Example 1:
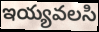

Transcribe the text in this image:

ఇయ్యవలసి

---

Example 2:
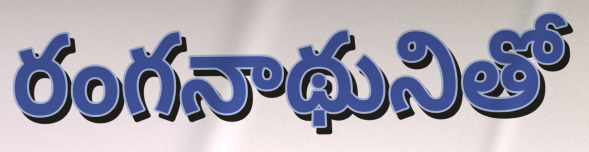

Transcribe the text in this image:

రంగనాథునితో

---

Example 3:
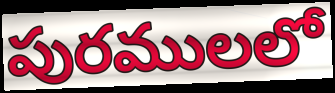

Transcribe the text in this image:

పురములలో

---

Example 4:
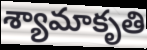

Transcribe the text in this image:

శ్యామాకృతి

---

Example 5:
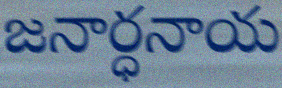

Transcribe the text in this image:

జనార్ధనాయ